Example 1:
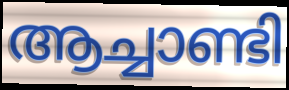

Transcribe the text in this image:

ആച്ചാണ്ടി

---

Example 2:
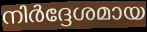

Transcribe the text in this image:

നിർദ്ദേശമായ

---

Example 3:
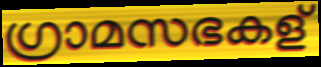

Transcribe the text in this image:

ഗ്രാമസഭകള്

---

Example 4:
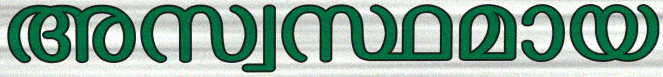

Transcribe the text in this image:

അസ്വസ്ഥമായ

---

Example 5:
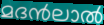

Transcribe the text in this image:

മദൻലാൽ